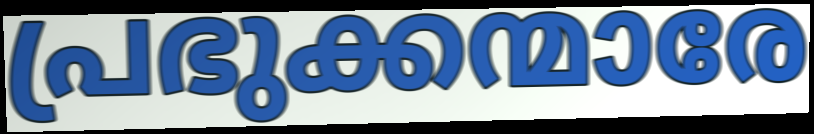
പ്രഭുക്കന്മാരേ